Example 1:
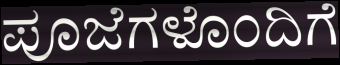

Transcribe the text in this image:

ಪೂಜೆಗಳೊಂದಿಗೆ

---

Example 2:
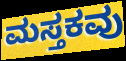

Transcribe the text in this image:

ಮಸ್ತಕವು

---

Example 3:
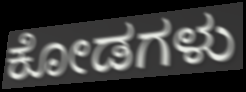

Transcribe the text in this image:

ಕೋಡಗಳು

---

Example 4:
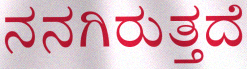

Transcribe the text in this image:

ನನಗಿರುತ್ತದೆ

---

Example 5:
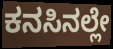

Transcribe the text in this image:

ಕನಸಿನಲ್ಲೇ